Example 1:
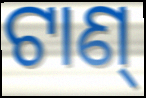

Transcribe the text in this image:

ଟାଣ୍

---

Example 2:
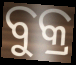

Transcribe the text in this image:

ବୁକ୍ର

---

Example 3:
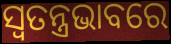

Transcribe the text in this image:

ସ୍ଵତନ୍ତ୍ରଭାବରେ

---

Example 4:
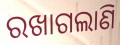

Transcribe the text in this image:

ରଖାଗଲାଣି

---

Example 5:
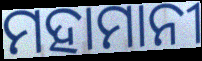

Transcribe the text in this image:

ମହାମାନୀ